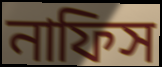
নাফিস